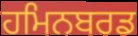
ਹਮਿਨਬਰਡ